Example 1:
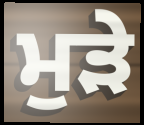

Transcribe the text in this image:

ਮੁੜੇ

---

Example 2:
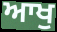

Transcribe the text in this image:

ਆਖੁ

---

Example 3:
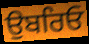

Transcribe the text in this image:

ਉਬਰਿਓ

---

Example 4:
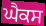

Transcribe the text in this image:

ਘੈਕਸ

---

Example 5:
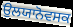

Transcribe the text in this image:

ਉਲਯਾਨੋਵਸਕ